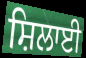
ਸ਼ਿਲਾਈ